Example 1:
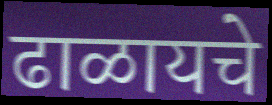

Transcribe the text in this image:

ढाळायचे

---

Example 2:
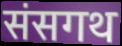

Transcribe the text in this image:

संसगथ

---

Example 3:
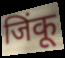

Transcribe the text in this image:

जिंकू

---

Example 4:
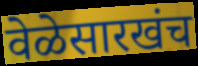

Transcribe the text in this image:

वेळेसारखंच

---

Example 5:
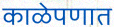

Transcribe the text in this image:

काळेपणात